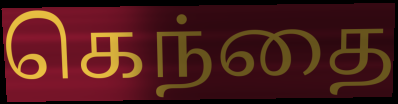
கெந்தை